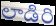
లాడిరి